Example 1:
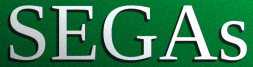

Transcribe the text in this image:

SEGAs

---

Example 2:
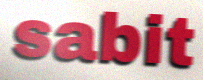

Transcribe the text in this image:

sabit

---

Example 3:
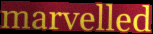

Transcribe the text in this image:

marvelled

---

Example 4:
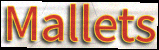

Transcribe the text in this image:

Mallets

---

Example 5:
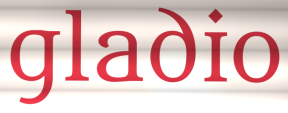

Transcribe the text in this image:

gladio